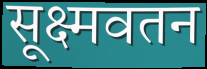
सूक्ष्मवतन